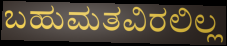
ಬಹುಮತವಿರಲಿಲ್ಲ